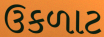
ઉકળાટ